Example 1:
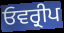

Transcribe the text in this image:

ਓਵਰ੍ਰੀਪ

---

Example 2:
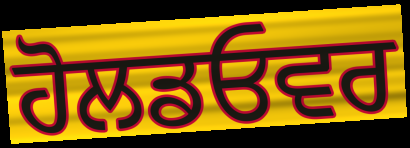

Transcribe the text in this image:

ਹੋਲਡਓਵਰ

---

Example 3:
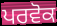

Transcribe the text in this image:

ਪਰਵੋਕ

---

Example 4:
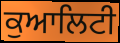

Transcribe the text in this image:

ਕੁਆਲਿਟੀ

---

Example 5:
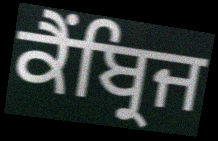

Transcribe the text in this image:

ਕੈਂਬ੍ਰਿਜ